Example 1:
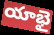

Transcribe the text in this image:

యాభై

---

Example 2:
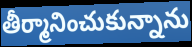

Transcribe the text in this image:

తీర్మానించుకున్నాను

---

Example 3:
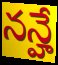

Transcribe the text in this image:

నన్హే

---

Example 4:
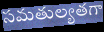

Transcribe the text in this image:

సమతుల్యతగా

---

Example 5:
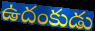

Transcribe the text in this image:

ఉదంకుడు